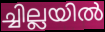
ച്ചില്ലയിൽ